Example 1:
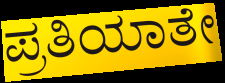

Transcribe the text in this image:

ಪ್ರತಿಯಾತೇ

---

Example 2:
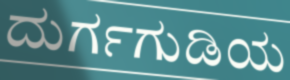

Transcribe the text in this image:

ದುರ್ಗಗುಡಿಯ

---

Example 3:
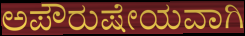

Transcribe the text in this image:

ಅಪೌರುಷೇಯವಾಗಿ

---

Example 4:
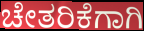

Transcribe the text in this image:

ಚೇತರಿಕೆಗಾಗಿ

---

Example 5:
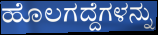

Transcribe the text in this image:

ಹೊಲಗದ್ದೆಗಳನ್ನು